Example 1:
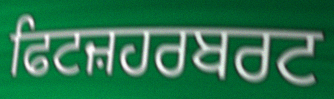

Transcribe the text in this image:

ਫਿਟਜ਼ਹਰਬਰਟ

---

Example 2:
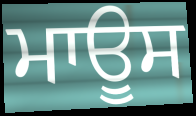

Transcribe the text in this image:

ਮਾਊਸ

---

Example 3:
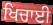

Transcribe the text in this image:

ਖਿਚਾਈ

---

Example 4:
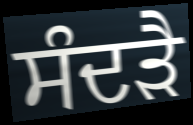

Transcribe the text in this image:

ਸੰਦੜੈ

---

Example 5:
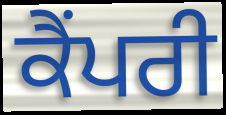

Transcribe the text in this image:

ਕੈਂਪਰੀ